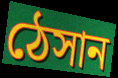
ঠেসান